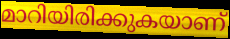
മാറിയിരിക്കുകയാണ്